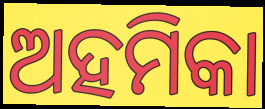
ଅହମିକା